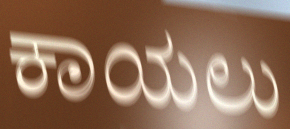
ಕಾಯಲು